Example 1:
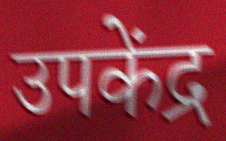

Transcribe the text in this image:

उपकेंद्र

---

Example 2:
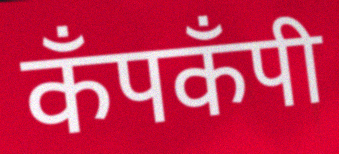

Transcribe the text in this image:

कँपकँपी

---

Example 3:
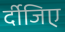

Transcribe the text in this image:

र्दीजिए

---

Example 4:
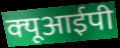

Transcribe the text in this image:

क्यूआईपी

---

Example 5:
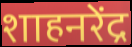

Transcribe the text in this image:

शाहनरेंद्र